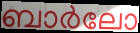
ബാർലോ